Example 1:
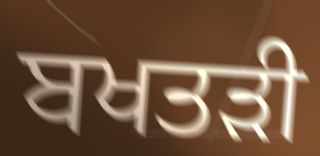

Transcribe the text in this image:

ਬਖਤੜੀ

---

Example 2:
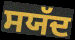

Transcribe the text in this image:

ਸਯੱਦ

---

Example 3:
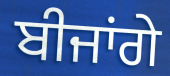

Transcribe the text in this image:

ਬੀਜਾਂਗੇ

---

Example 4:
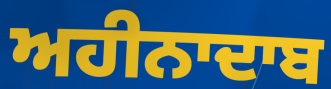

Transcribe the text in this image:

ਅਹੀਨਾਦਾਬ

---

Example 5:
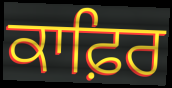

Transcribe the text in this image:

ਕਾਫ਼ਿਰ